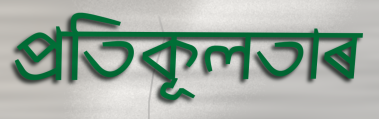
প্ৰতিকূলতাৰ